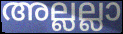
അല്ലല്ലാ